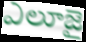
ఎలూజై